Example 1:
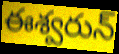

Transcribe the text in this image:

ఈశ్వరున్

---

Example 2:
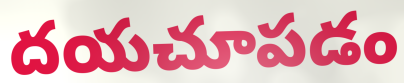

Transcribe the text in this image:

దయచూపడం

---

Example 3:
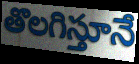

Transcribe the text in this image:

తొలగిస్తూనే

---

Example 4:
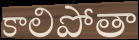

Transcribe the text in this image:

కాలిపోతా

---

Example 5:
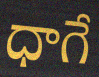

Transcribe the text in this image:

ధాగే